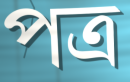
পত্ৰ